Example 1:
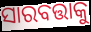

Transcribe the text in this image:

ସାରବତ୍ତାକୁ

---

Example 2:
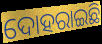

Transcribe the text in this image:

ଦୋହରାଇଛି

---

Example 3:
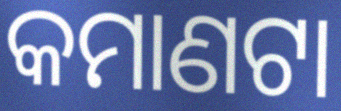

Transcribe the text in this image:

କମାଣଟା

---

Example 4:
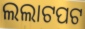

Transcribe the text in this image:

ଲଲାଟପଟ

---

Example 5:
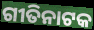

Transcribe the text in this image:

ଗୀତିନାଟକ